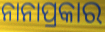
ନାନାପ୍ରକାର